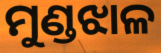
ମୁଣ୍ଡଝାଳ